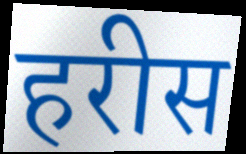
हरीस